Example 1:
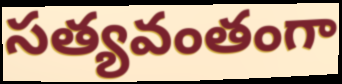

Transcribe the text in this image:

సత్యవంతంగా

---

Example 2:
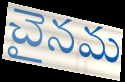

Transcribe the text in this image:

చైనమ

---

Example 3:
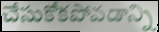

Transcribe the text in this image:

చేసుకోకపోవడాన్ని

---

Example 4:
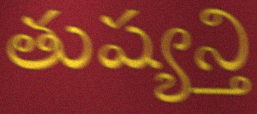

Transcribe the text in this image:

తుష్యన్తి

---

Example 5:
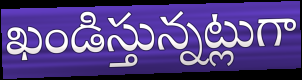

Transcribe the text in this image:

ఖండిస్తున్నట్లుగా